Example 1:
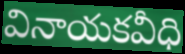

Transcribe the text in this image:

వినాయకవీధి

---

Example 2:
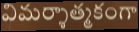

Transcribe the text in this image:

విమర్శాత్మకంగా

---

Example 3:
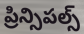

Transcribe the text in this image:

ప్రిన్సిపల్స్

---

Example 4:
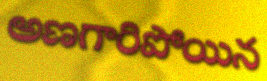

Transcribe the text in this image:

అణగారిపోయిన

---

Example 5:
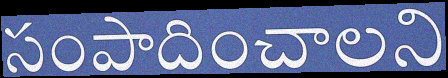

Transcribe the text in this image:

సంపాదించాలని